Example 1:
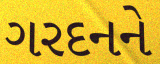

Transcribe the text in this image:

ગરદનને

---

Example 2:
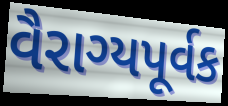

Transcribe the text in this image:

વૈરાગ્યપૂર્વક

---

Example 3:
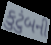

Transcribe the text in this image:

કુટુંબની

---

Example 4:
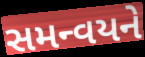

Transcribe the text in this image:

સમન્વયને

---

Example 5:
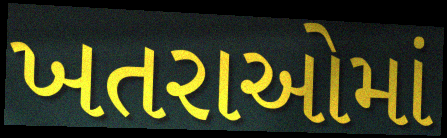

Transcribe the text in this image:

ખતરાઓમાં